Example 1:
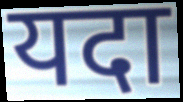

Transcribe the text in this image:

यदा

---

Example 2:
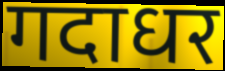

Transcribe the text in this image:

गदाधर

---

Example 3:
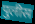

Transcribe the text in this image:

पुलीस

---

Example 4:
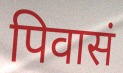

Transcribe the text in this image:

पिवासं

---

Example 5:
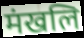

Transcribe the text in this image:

मंखलि